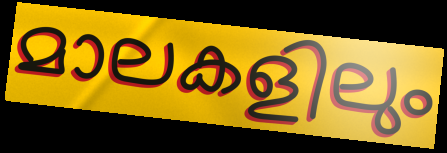
മാലകളിലും